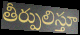
తీర్పులిస్తూ